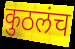
कुठलंच